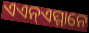
ଏଏନ୍ଏମ୍ମାନେ